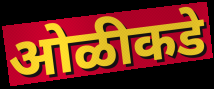
ओळीकडे